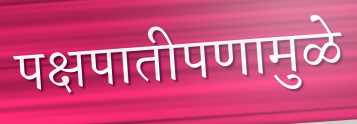
पक्षपातीपणामुळे